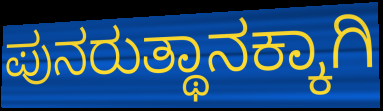
ಪುನರುತ್ಥಾನಕ್ಕಾಗಿ